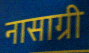
नासाग्री